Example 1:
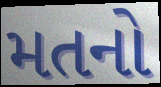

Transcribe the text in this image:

મતનો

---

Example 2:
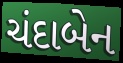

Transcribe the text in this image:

ચંદાબેન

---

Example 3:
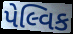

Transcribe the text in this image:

પેલ્વિક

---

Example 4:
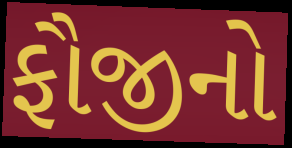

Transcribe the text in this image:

ફૌજીનો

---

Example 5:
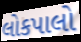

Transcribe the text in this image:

લોકપાલો